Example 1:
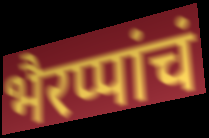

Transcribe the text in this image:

भैरप्पांचं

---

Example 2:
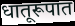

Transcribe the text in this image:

धातूरूपात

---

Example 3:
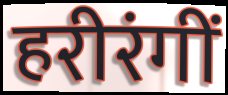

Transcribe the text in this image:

हरीरंगीं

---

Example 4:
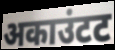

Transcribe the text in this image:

अकाउंटट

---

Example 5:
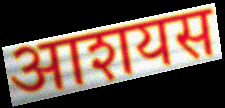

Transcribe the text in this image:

आशयस